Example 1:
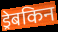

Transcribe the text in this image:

ड्रेबकिन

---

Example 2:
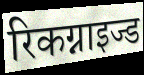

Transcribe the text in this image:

रिकग्नाइज्ड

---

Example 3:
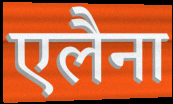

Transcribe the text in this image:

एलैना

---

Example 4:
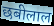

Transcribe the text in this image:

छबीलाल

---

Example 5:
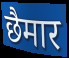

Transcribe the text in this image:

छैमार